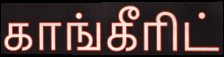
காங்கீரிட்